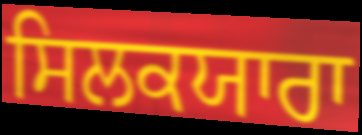
ਸਿਲਕਯਾਰਾ